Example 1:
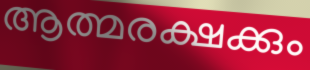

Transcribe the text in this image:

ആത്മരക്ഷക്കും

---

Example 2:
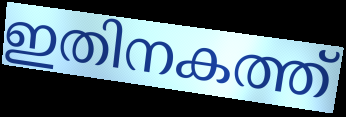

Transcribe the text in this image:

ഇതിനകത്ത്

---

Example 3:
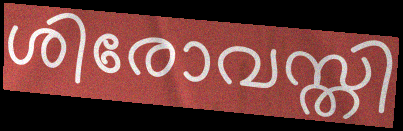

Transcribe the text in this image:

ശിരോവസ്തി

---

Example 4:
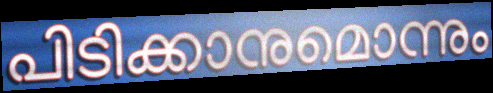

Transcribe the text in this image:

പിടിക്കാനുമൊന്നും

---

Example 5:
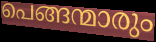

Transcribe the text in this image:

പെങ്ങന്മാരും